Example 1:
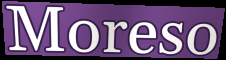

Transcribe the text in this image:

Moreso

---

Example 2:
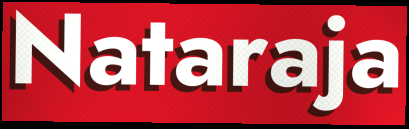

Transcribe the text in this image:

Nataraja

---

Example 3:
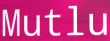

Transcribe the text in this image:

Mutlu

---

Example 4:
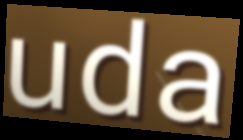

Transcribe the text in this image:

uda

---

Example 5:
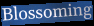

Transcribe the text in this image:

Blossoming